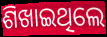
ଶିଖାଇଥିଲେ